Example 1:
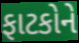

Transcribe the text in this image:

ફાટકોને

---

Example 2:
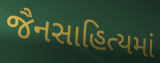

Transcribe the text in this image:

જૈનસાહિત્યમાં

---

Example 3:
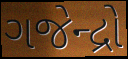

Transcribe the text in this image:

ગજેન્દ્રો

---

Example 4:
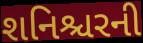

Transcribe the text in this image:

શનિશ્ચરની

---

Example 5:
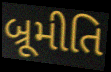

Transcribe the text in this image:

બ્રૂમીતિ